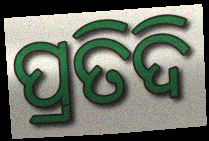
ପ୍ରତିଦି